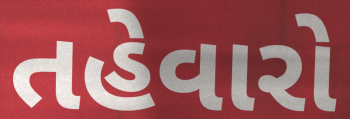
તહેવારો